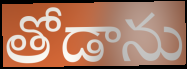
తోడాను